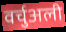
वर्चुअली